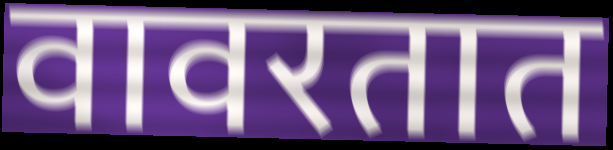
वावरतात